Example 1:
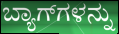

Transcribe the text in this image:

ಬ್ಯಾಗ್‍ಗಳನ್ನು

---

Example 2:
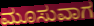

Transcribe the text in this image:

ಮೂಸುವಾಗ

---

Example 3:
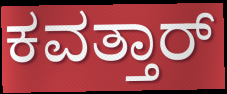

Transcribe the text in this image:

ಕವತ್ತಾರ್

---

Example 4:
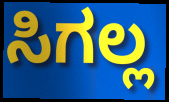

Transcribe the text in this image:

ಸಿಗಲ್ಲ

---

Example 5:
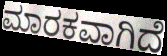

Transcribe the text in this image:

ಮಾರಕವಾಗಿದೆ